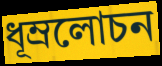
ধূম্রলোচন